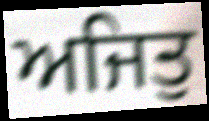
ਅਜਿਤੁ